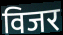
विजर